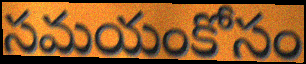
సమయంకోసం